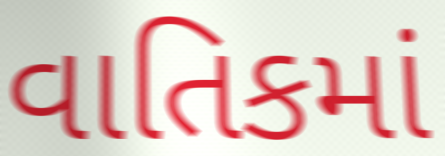
વાતિકમાં